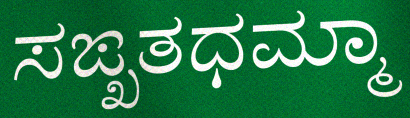
ಸಙ್ಖತಧಮ್ಮಾ